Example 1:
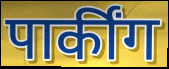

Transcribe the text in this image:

पार्कींग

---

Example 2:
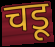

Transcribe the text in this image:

चडू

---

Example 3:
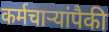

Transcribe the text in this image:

कर्मचाऱ्यांपैकी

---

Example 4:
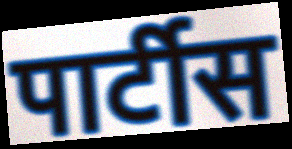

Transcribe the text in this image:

पार्टीस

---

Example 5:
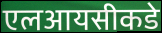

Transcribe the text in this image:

एलआयसीकडे